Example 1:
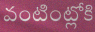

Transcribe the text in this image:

వంటింట్లోకి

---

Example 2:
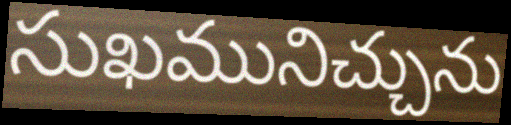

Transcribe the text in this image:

సుఖమునిచ్చును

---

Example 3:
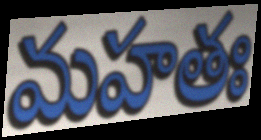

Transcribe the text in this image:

మహతః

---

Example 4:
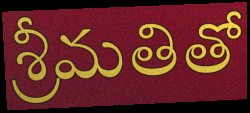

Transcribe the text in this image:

శ్రీమతితో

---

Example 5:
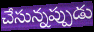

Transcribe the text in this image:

చేసున్నప్పుడు